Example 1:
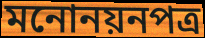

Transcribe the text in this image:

মনোনয়নপত্র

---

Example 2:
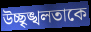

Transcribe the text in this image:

উচ্ছৃঙ্খলতাকে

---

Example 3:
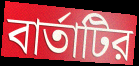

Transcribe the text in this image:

বার্তাটির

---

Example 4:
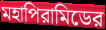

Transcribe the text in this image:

মহাপিরামিডের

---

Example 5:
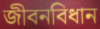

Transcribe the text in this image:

জীবনবিধান